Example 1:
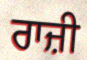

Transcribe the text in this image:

ਰਾਜ਼ੀ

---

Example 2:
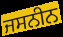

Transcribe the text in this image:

ਜਸਨੀਨ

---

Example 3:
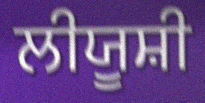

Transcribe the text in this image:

ਲੀਯੂਸ਼ੀ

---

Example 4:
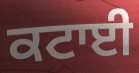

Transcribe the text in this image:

ਕਟਾਈ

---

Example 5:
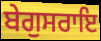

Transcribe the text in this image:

ਬੇਗੁਸਰਾਇ